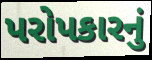
પરોપકારનું